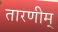
तारणीम्